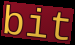
bit